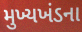
મુખ્યખંડના